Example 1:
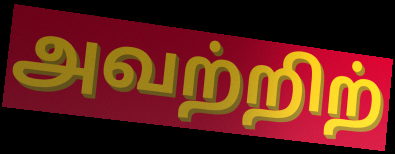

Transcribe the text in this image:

அவற்றிற்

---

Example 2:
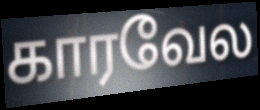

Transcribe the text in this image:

காரவேல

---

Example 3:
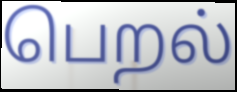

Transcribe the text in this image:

பெறல்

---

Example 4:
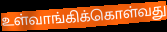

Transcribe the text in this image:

உள்வாங்கிக்கொள்வது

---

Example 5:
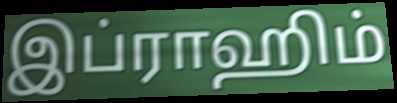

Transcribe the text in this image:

இப்ராஹிம்